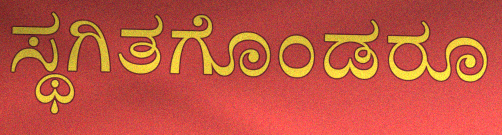
ಸ್ಥಗಿತಗೊಂಡರೂ